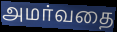
அமர்வதை